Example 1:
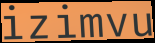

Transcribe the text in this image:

izimvu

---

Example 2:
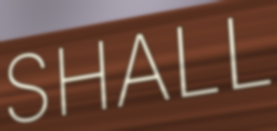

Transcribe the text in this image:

SHALL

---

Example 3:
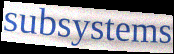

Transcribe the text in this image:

subsystems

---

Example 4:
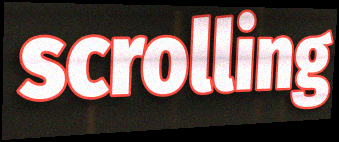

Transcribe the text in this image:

scrolling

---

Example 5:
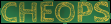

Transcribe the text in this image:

CHEOPS